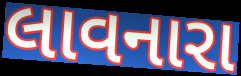
લાવનારા